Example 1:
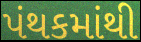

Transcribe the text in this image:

પંથકમાંથી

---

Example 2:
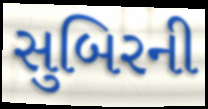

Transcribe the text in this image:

સુબિરની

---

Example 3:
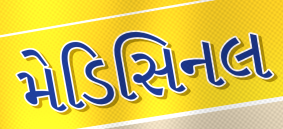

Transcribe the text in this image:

મેડિસિનલ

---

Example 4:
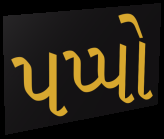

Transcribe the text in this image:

પપ્પો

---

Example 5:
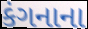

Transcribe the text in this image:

કંગનાના